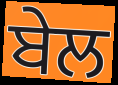
ਬੇਲ